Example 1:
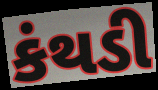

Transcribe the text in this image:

કંથડી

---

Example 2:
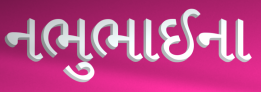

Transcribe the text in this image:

નભુભાઈના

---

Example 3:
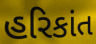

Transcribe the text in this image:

હરિકાંત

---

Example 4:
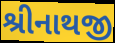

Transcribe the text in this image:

શ્રીનાથજી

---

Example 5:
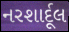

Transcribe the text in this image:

નરશાર્દૂલ